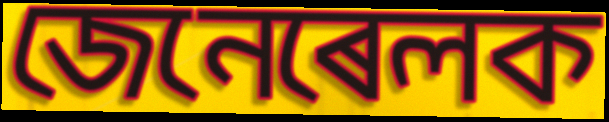
জেনেৰেলক